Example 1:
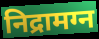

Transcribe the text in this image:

निद्रामग्न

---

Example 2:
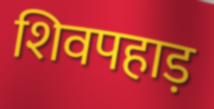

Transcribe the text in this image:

शिवपहाड़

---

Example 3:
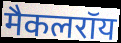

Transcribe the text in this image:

मैकलरॉय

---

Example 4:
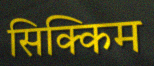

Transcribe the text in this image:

सिक्किम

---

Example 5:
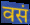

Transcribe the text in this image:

वसं